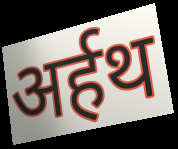
अर्हथ